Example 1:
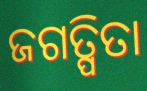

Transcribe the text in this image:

ଜଗତ୍ପିତା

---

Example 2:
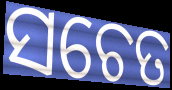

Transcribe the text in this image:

ସଚେତ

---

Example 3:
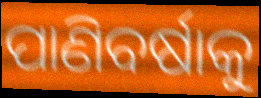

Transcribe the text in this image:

ପାଣିବର୍ଷାକୁ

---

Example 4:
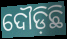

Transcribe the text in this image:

ଦୌଡ଼ିଛି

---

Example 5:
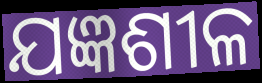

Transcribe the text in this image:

ଯଜ୍ଞଶୀଳ